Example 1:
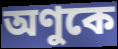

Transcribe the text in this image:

অণুকে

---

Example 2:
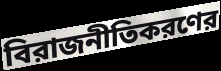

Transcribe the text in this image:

বিরাজনীতিকরণের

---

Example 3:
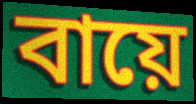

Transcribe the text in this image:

বায়ে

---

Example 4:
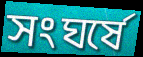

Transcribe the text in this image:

সংঘর্ষে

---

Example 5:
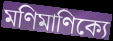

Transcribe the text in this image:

মণিমাণিক্যে